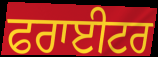
ਫਰਾਈਟਰ